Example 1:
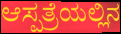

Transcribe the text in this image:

ಆಸ್ಪತ್ರೆಯಲ್ಲಿನ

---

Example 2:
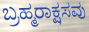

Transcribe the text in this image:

ಬ್ರಹ್ಮರಾಕ್ಷಸವು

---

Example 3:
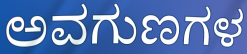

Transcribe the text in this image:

ಅವಗುಣಗಳ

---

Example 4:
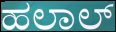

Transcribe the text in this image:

ಹಲಾಲ್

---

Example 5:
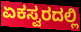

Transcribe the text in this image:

ಏಕಸ್ವರದಲ್ಲಿ